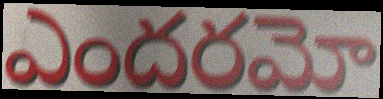
ఎందరమో